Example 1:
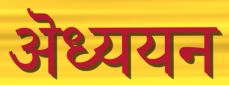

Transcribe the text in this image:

ऄध्ययन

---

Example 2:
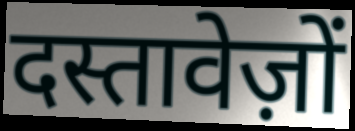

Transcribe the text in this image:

दस्तावेज़ों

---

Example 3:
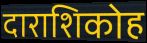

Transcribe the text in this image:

दाराशिकोह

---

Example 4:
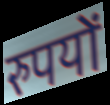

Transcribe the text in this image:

रुपयों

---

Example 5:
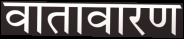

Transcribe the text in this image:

वातावारण